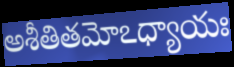
అశీతితమోఽధ్యాయః